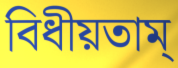
বিধীয়তাম্